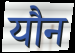
यौन